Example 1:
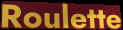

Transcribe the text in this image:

Roulette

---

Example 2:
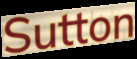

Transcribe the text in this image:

Sutton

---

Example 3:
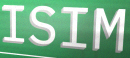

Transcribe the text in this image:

ISIM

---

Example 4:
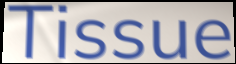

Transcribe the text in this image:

Tissue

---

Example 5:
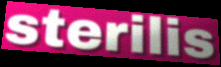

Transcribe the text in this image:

sterilis